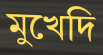
মুখেদি